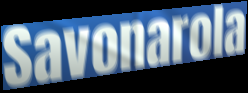
Savonarola